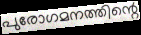
പുരോഗമനത്തിന്റെ